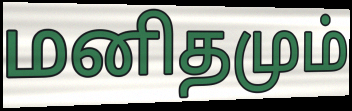
மனிதமும்